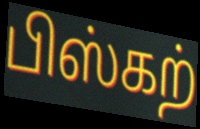
பிஸ்கற்